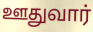
ஊதுவார்